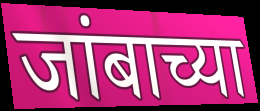
जांबाच्या